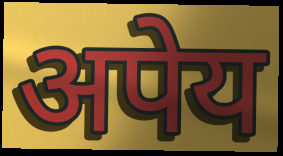
अपेय